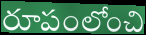
రూపంలోంచి